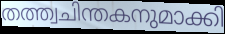
തത്ത്വചിന്തകനുമാക്കി